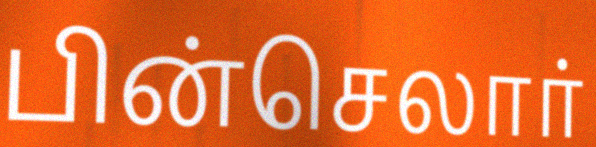
பின்செலார்